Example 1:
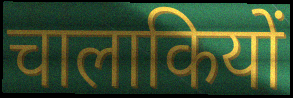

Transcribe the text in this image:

चालाकियों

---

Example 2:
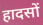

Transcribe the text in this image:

हादसों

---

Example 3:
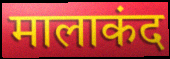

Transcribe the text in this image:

मालाकंद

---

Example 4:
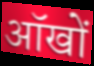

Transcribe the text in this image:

ऑखों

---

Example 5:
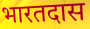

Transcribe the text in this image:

भारतदास